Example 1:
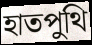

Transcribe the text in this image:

হাতপুথি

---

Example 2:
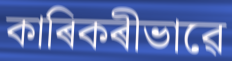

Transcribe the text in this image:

কাৰিকৰীভাৱে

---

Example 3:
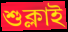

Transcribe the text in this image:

শুক্লাই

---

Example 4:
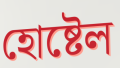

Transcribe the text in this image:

হোষ্টেল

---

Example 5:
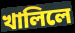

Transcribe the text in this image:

খালিলে